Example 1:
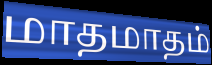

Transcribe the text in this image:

மாதமாதம்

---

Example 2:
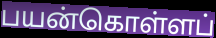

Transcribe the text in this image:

பயன்கொள்ளப்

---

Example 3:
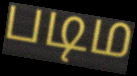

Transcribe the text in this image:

படிம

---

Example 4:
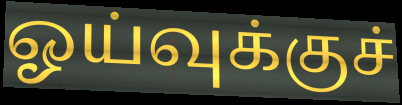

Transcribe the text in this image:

ஓய்வுக்குச்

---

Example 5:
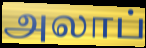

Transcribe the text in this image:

அலாப்